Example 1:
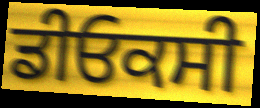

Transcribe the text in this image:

ਡੀਓਕਸੀ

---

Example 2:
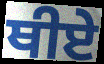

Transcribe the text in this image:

ਥੀਏ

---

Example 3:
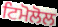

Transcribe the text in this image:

ਟਿਮੋਲੋਲ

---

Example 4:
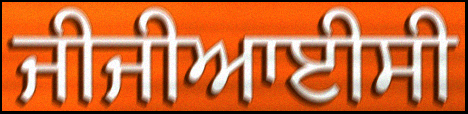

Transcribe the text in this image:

ਜੀਜੀਆਈਸੀ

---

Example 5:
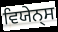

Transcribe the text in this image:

ਵਿਯੇਨ੍ਸ